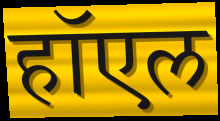
हॉएल